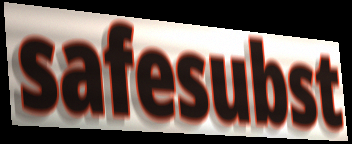
safesubst